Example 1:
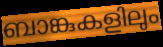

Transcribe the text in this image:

ബാങ്കുകളിലും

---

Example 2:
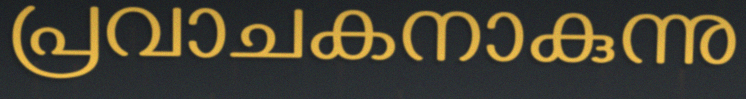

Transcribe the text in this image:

പ്രവാചകനാകുന്നു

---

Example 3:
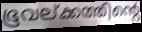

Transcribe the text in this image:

ഭൂവല്ക്കത്തിന്റെ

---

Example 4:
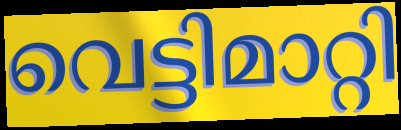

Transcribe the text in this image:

വെട്ടിമാറ്റി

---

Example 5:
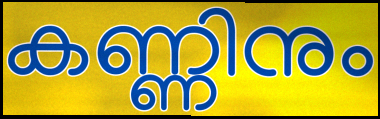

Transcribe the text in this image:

കണ്ണിനും